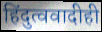
हिंदुत्ववादीही